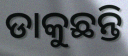
ଡାକୁଛନ୍ତି